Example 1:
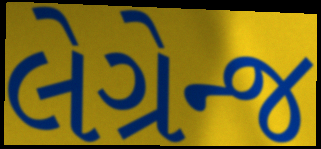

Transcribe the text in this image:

લેગ્રેન્જ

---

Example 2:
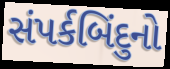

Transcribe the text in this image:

સંપર્કબિંદુનો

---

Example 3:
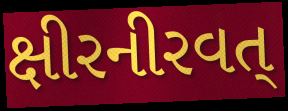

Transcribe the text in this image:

ક્ષીરનીરવત્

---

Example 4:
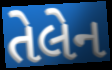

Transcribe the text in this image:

તેલેન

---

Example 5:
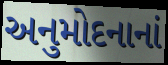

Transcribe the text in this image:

અનુમોદનાનાં